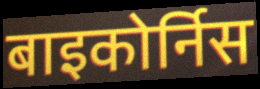
बाइकोर्निस